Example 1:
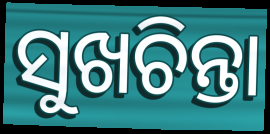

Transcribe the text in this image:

ସୁଖଚିନ୍ତା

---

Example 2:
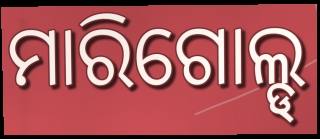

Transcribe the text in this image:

ମାରିଗୋଲ୍ଡ୍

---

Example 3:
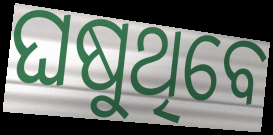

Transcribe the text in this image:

ଘଷୁଥିବେ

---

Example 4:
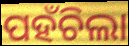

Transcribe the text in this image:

ପହଁଚିଲା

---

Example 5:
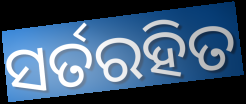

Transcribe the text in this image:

ସର୍ତରହିତ